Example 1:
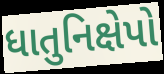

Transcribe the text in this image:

ધાતુનિક્ષેપો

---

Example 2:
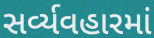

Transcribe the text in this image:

સર્વ્યવહારમાં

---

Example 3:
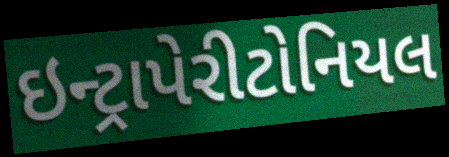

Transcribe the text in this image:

ઇન્ટ્રાપેરીટોનિયલ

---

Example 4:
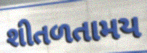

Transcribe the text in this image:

શીતળતામય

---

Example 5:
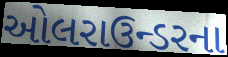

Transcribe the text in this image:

ઓલરાઉન્ડરના